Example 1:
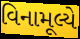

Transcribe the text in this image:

વિનામૂલ્યે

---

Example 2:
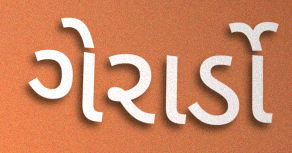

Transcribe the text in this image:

ગેરાર્ડો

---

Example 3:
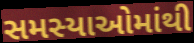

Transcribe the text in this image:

સમસ્યાઓમાંથી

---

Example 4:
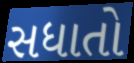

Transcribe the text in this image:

સધાતો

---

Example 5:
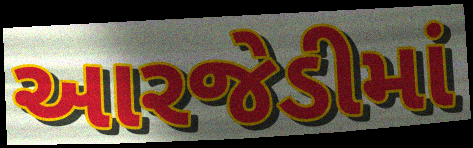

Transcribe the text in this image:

આરજેડીમાં